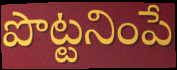
పొట్టనింపే